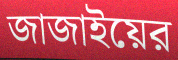
জাজাইয়ের